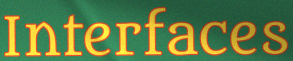
Interfaces